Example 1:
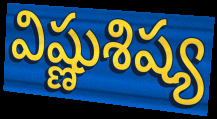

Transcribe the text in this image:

విష్ణుశిష్య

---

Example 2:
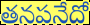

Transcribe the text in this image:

తనపనేదో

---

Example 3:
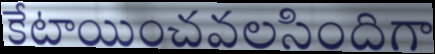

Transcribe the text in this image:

కేటాయించవలసిందిగా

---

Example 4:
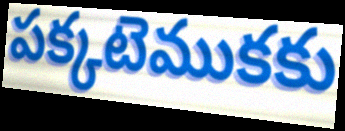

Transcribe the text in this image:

పక్కటెముకకు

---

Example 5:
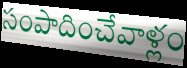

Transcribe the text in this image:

సంపాదించేవాళ్లం